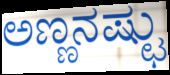
ಅಣ್ಣನಷ್ಟು